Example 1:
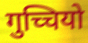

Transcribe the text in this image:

गुच्चियो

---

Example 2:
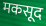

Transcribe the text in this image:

मकसूद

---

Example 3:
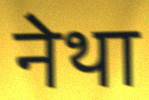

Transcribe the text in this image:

नेथा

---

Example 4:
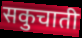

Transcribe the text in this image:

सकुचाती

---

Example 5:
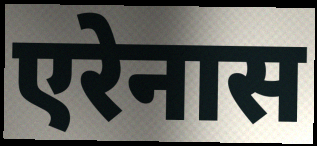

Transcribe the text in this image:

एरेनास